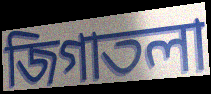
জিগাতলা